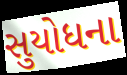
સુયોધના